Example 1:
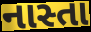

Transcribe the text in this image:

નાસ્તા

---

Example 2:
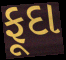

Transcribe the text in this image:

ફૂદા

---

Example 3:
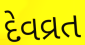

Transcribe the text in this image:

દેવવ્રત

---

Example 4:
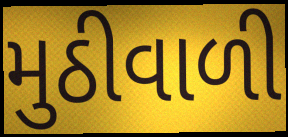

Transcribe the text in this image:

મુઠીવાળી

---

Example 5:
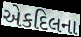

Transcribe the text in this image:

એકદિલના